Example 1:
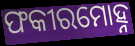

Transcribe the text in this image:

ଫକୀରମୋହ୍ନ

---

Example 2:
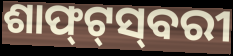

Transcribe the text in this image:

ଶାଫ୍‍ଟ୍‍ସ୍‍ବରୀ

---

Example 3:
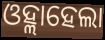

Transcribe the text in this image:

ଓହ୍ଲାହେଲା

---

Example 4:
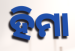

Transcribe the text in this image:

ହିମା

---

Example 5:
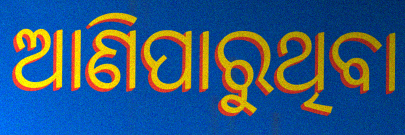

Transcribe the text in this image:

ଆଣିପାରୁଥିବା